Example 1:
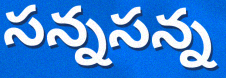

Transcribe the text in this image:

సన్నసన్న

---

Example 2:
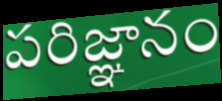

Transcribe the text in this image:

పరిజ్ఞానం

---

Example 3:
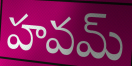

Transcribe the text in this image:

హవమ్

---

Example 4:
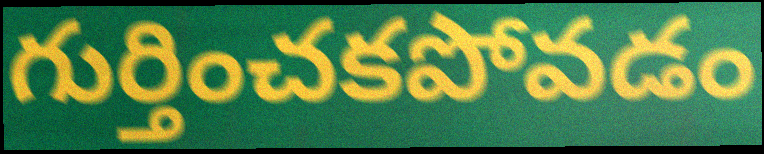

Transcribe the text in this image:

గుర్తించకపోవడం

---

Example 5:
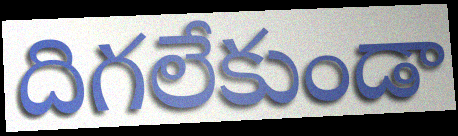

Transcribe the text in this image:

దిగలేకుండా